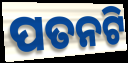
ପତନଟି